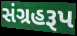
સંગ્રહરૂપ